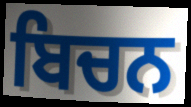
ਬਿਚਨ